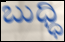
ಬುಧ್ಧಿ